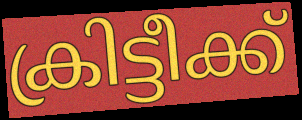
ക്രിട്ടീക്ക്